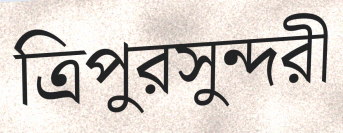
ত্রিপুরসুন্দরী